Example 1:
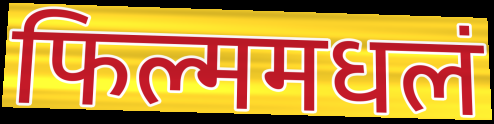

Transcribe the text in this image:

फिल्ममधलं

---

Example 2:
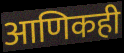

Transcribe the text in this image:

आणिकही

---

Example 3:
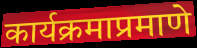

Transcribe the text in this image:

कार्यक्रमाप्रमाणे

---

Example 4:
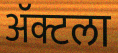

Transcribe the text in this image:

ॲक्टला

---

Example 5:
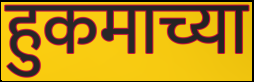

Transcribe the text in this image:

हुकमाच्या